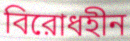
বিরোধহীন